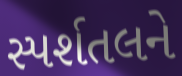
સ્પર્શતલને